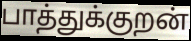
பாத்துக்குறன்